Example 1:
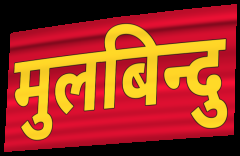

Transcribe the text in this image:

मुलबिन्दु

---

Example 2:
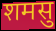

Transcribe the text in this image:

शमसु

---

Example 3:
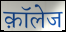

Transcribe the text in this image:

क़ॉलेज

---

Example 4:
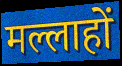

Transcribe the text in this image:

मल्लाहों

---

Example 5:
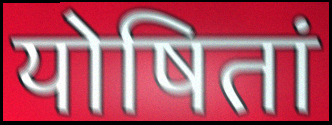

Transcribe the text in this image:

योषितां